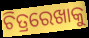
ଚିତ୍ରରେଖାକୁ